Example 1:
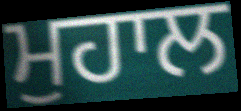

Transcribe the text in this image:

ਮੁਹਾਲ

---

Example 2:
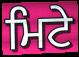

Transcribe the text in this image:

ਮਿਟੇ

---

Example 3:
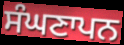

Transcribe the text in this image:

ਸੰਘਣਾਪਨ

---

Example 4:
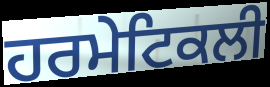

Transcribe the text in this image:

ਹਰਮੇਟਿਕਲੀ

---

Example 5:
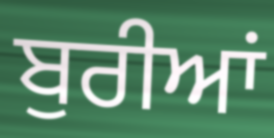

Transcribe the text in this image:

ਬੁਰੀਆਂ